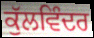
ਕੁੱਲਵਿੰਦਰ